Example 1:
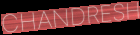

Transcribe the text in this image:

CHANDRESH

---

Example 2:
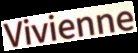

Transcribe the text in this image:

Vivienne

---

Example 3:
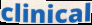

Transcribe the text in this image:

clinical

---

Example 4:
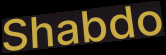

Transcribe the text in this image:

Shabdo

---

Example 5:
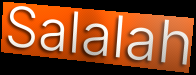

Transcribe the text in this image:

Salalah